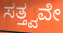
ಸತ್ತ್ವವೇ